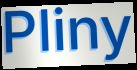
Pliny